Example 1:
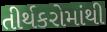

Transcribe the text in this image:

તીર્થકરોમાંથી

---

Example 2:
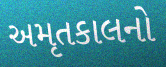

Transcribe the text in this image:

અમૃતકાલનો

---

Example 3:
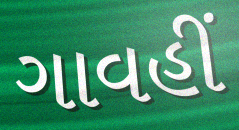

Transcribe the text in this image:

ગાવહીં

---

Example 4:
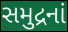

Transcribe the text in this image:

સમુદ્રનાં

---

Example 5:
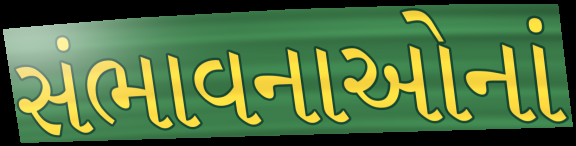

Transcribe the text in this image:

સંભાવનાઓનાં